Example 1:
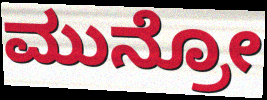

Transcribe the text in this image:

ಮುನ್ರೋ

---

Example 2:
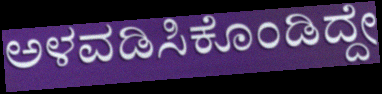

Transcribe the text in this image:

ಅಳವಡಿಸಿಕೊಂಡಿದ್ದೇ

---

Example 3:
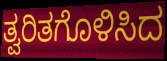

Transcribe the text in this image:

ತ್ವರಿತಗೊಳಿಸಿದ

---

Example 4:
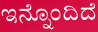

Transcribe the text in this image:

ಇನ್ನೊಂದಿದೆ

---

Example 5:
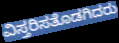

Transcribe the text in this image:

ವಿಸ್ತರಿಸತೊಡಗಿದರು